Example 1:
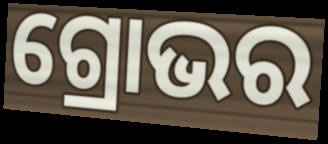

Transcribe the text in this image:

ଗ୍ରୋଭର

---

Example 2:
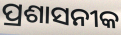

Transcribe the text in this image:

ପ୍ରଶାସନୀକ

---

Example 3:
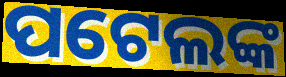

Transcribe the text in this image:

ପଟେଲଙ୍କ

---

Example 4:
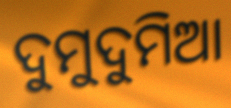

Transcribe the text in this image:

ଦୁମୁଦୁମିଆ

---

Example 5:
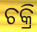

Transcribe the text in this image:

ଚକ୍ରି